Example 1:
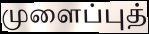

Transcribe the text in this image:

முளைப்புத்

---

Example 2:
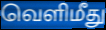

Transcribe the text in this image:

வெளிமீது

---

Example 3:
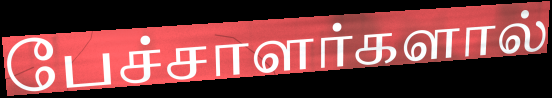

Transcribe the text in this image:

பேச்சாளர்களால்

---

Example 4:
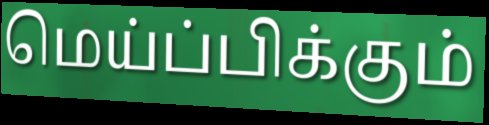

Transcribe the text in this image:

மெய்ப்பிக்கும்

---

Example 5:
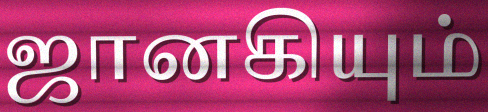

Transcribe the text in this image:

ஜானகியும்